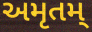
અમૃતમ્